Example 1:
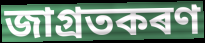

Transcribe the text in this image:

জাগ্ৰতকৰণ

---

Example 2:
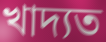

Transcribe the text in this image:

খাদ্যত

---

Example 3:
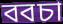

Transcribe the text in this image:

ববচা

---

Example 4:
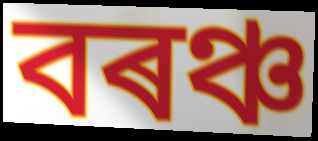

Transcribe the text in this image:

বৰঞ্চ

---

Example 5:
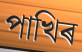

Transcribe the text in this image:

পাখিৰ